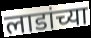
लाडांच्या